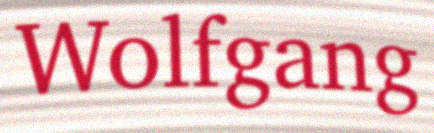
Wolfgang